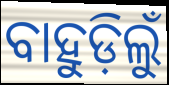
ବାହୁଡ଼ିଲୁଁ